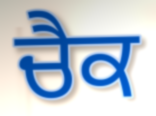
ਚੈਕ